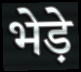
भेड़े